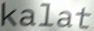
kalat